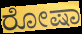
ರೋಷಾ